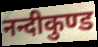
नन्दीकुण्ड